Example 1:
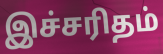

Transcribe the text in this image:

இச்சரிதம்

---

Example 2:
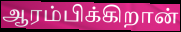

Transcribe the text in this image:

ஆரம்பிக்கிறான்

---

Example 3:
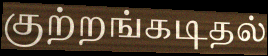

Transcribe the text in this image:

குற்றங்கடிதல்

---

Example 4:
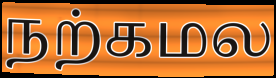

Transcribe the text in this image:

நற்கமல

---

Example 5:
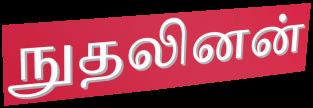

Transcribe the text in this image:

நுதலினன்